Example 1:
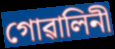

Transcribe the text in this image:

গোৱালিনী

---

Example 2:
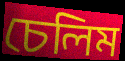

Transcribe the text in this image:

চেলিম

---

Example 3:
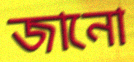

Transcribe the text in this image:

জানো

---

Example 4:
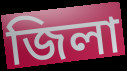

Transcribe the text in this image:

জিলা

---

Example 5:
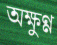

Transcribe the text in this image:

অক্ষুণ্ণ